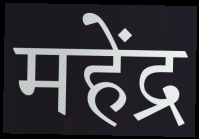
महेंद्र